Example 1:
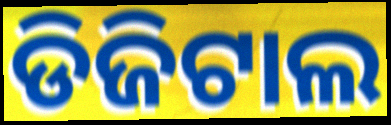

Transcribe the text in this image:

ଡିଜିଟାଲ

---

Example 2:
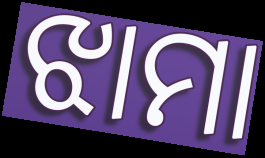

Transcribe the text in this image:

ଝାମା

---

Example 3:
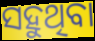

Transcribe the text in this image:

ସହୁଥିବା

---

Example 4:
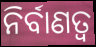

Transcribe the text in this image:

ନିର୍ବାଣତ୍ୱ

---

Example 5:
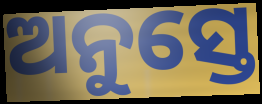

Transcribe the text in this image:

ଅନୁସ୍ତେ